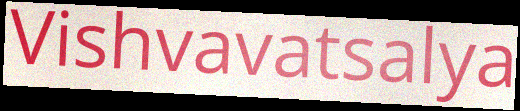
Vishvavatsalya